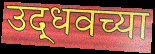
उद्धवच्या